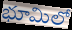
భూమిలో